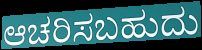
ಆಚರಿಸಬಹುದು